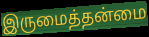
இருமைத்தன்மை